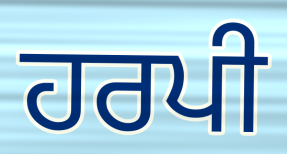
ਹਰਪੀ